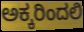
ಅಕ್ಕರಿಂದಲಿ